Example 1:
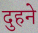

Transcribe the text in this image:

दुहने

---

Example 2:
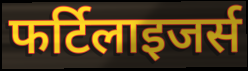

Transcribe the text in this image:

फर्टिलाइजर्स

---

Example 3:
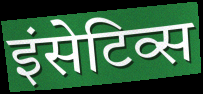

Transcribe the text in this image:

इंसेटिव्स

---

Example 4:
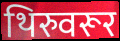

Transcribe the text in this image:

थिरुवरूर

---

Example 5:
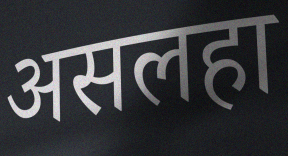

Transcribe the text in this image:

असलहा